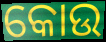
କୋଉ